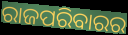
ରାଜପରିବାରର